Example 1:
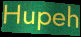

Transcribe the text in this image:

Hupeh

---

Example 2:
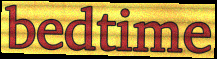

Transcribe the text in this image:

bedtime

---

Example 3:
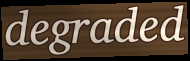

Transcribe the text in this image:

degraded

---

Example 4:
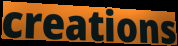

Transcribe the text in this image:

creations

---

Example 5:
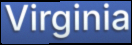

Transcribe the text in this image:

Virginia